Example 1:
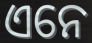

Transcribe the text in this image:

ଏନେ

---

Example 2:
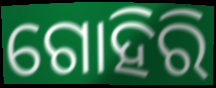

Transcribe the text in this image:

ଗୋହିରି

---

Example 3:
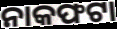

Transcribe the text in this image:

ନାକଫଟା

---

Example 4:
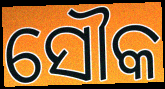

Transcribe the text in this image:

ସୌକ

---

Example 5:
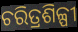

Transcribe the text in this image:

ଚରିତ୍ରଶିଳ୍ପୀ